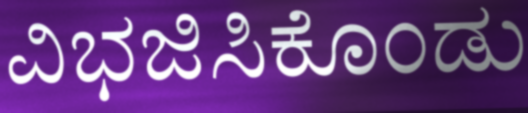
ವಿಭಜಿಸಿಕೊಂಡು